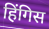
हिंगिस